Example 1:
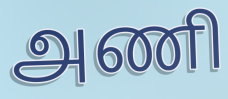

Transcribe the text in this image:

அணி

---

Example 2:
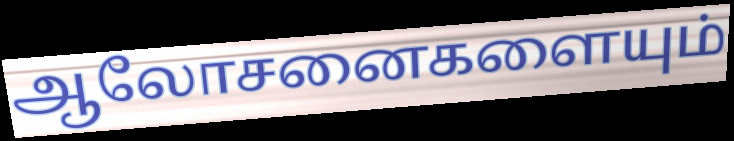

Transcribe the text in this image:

ஆலோசனைகளையும்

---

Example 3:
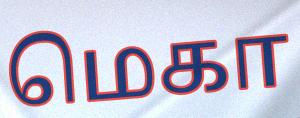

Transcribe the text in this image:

மெகா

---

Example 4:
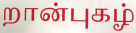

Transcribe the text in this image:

றான்புகழ்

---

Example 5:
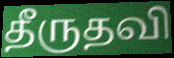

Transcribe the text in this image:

தீருதவி